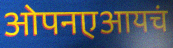
ओपनएआयचं